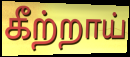
கீற்றாய்